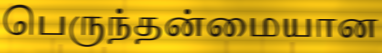
பெருந்தன்மையான